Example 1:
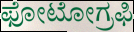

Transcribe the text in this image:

ಫೋಟೋಗ್ರಫಿ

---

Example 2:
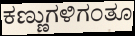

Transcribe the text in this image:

ಕಣ್ಣುಗಳಿಗಂತೂ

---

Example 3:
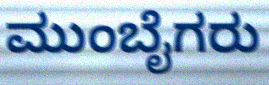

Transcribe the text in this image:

ಮುಂಬೈಗರು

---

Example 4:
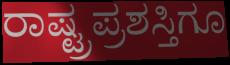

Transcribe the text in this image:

ರಾಷ್ಟ್ರಪ್ರಶಸ್ತಿಗೂ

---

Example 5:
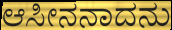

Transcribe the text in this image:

ಆಸೀನನಾದನು